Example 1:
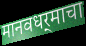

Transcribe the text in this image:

मानवधर्माचा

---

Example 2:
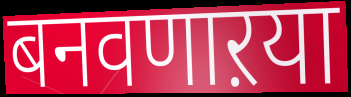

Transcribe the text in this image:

बनवणाऱया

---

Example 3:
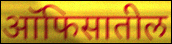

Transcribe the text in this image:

ऑफिसातील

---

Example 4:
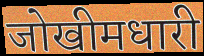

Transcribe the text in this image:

जोखीमधारी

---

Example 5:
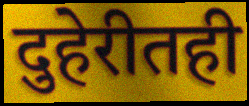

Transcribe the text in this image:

दुहेरीतही